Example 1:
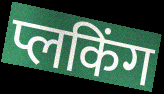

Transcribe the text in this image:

प्लकिंग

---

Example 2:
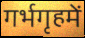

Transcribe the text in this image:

गर्भगृहमें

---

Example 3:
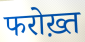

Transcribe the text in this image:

फरोख़्त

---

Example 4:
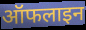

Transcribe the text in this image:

ऑफलाइन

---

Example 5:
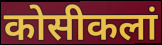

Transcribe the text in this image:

कोसीकलां